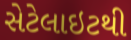
સેટેલાઇટથી